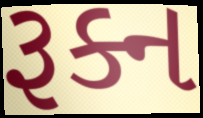
રૂક્ન